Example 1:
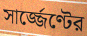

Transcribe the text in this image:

সার্জ্জেণ্টের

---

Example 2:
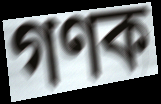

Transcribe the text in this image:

গণক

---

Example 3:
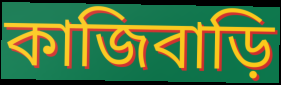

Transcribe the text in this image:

কাজিবাড়ি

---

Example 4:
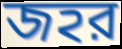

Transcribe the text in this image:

জহর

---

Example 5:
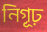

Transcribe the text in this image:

নিগূঢ়